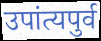
उपांत्यपुर्व